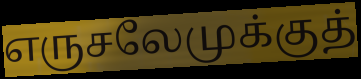
எருசலேமுக்குத்